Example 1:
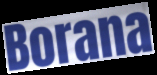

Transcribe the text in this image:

Borana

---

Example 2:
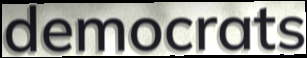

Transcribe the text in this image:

democrats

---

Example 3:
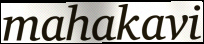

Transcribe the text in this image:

mahakavi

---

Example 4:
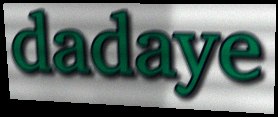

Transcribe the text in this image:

dadaye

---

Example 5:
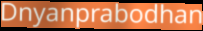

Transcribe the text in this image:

Dnyanprabodhan